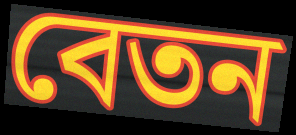
বেতন